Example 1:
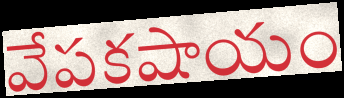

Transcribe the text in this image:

వేపకషాయం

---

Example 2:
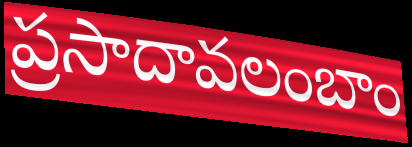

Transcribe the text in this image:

ప్రసాదావలంబాం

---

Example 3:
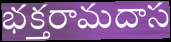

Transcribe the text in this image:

భక్తరామదాస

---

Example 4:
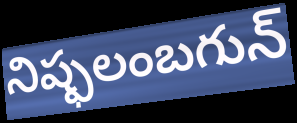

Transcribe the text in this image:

నిష్ఫలంబగున్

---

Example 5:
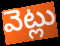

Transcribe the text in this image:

వెట్లు